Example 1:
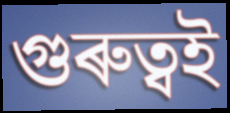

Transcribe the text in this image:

গুৰুত্বই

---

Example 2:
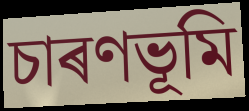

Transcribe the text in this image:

চাৰণভূমি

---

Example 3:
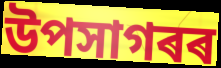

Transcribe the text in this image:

উপসাগৰৰ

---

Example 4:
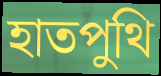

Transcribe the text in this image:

হাতপুথি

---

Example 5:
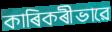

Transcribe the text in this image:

কাৰিকৰীভাৱে